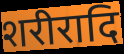
शरीरादि